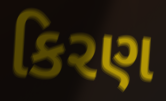
કિરણ